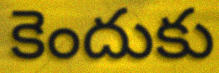
కెందుకు